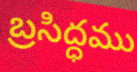
బ్రసిద్ధము